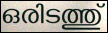
ഒരിടത്തു്